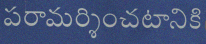
పరామర్శించటానికి